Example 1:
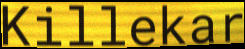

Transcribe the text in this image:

Killekar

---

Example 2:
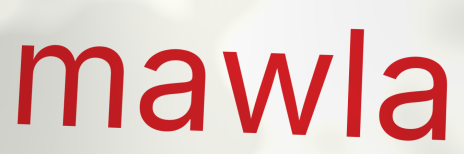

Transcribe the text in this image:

mawla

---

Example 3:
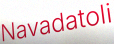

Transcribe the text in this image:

Navadatoli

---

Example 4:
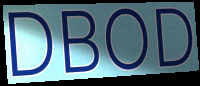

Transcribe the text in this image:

DBOD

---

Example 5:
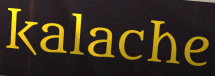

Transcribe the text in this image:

kalache